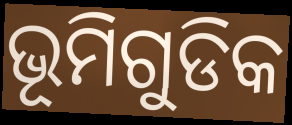
ଭୂମିଗୁଡିକ